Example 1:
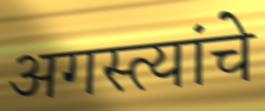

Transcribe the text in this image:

अगस्त्यांचे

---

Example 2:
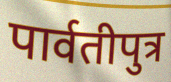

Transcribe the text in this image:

पार्वतीपुत्र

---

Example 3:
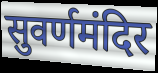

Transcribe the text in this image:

सुवर्णमंदिर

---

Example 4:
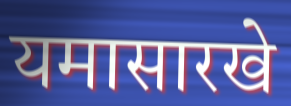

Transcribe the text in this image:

यमासारखे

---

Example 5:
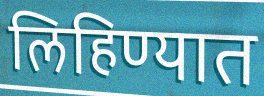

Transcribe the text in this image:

लिहिण्यात